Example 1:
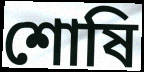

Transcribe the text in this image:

শোষি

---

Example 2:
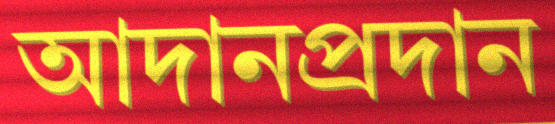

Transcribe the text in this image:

আদানপ্রদান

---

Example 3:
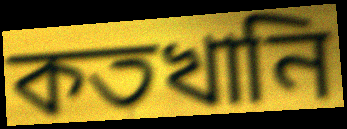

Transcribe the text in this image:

কতখানি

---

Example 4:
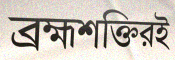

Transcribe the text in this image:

ব্রহ্মশক্তিরই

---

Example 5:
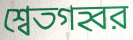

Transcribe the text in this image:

শ্বেতগহ্বর